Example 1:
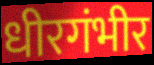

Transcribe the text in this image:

धीरगंभीर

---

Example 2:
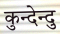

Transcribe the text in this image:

कुन्देन्दु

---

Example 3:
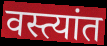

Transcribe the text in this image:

वस्त्यांत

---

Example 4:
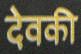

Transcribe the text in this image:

देवकी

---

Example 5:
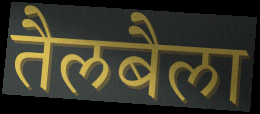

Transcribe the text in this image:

तैलबैला